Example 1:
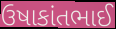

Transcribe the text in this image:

ઉષાકાંતભાઈ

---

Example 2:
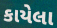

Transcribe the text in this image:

કાયેલા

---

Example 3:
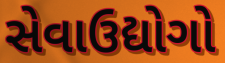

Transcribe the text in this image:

સેવાઉદ્યોગો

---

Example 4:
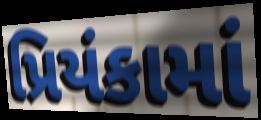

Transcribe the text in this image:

પ્રિયંકામાં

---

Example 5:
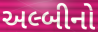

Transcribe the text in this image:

અલ્બીનો